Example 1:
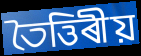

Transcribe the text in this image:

তৈত্তিৰীয়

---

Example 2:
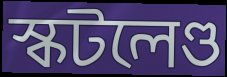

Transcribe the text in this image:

স্কটলেণ্ড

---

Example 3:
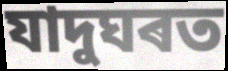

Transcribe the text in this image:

যাদুঘৰত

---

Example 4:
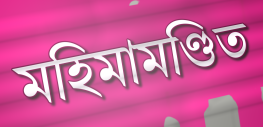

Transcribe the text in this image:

মহিমামণ্ডিত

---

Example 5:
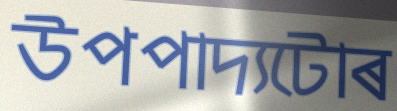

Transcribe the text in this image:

উপপাদ্যটোৰ